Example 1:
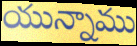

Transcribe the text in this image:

యున్నాము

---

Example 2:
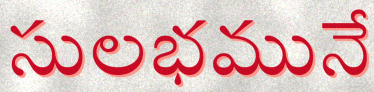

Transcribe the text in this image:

సులభమునే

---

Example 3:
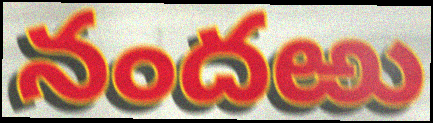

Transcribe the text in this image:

నందఱు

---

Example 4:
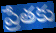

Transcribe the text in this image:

ప్రేతకు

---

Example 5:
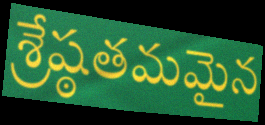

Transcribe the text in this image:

శ్రేష్ఠతమమైన